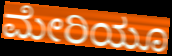
ಮೇರಿಯೂ